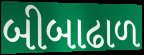
બીબાઢાળ